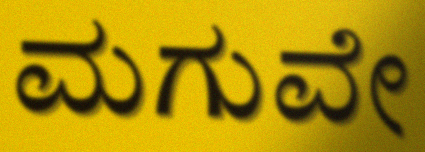
ಮಗುವೇ